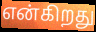
என்கிறது